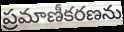
ప్రమాణీకరణను